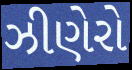
ઝીણેરો